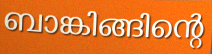
ബാങ്കിങ്ങിന്റെ